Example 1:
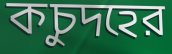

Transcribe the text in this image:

কচুদহের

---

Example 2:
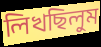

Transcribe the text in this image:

লিখছিলুম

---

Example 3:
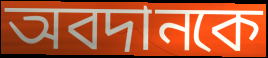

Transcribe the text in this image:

অবদানকে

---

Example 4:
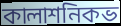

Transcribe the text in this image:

কালাশনিকভ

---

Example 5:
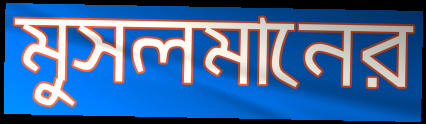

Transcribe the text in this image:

মুসলমানের